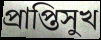
প্রাপ্তিসুখ